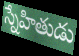
స్నేహితుడు